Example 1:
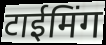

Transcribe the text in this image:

टाईमिंग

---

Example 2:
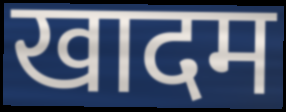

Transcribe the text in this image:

खादम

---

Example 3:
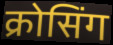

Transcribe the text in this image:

क्रोसिंग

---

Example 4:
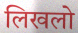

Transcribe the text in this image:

लिखलो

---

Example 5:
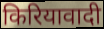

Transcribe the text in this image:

किरियावादी